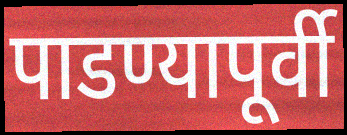
पाडण्यापूर्वी